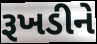
રૂખડીને